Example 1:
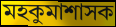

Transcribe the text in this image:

মহকুমাশাসক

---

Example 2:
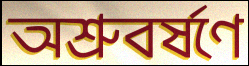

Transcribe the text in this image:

অশ্রুবর্ষণে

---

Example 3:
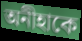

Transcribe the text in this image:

অনীহাকে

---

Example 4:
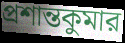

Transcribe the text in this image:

প্রশান্তকুমার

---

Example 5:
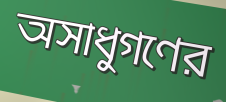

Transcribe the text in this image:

অসাধুগণের